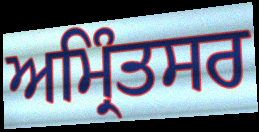
ਅਮ੍ਰਿੰਤਸਰ